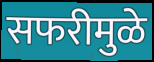
सफरीमुळे